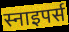
स्नाइपर्स